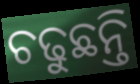
ଚଢୁଛନ୍ତି